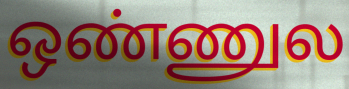
ஒண்ணுல